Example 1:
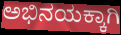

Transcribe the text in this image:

ಅಭಿನಯಕ್ಕಾಗಿ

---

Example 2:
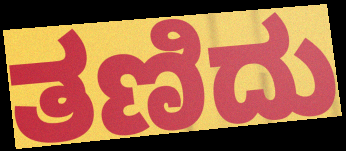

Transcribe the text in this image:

ತಣಿದು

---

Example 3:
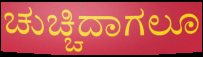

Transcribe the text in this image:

ಚುಚ್ಚಿದಾಗಲೂ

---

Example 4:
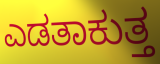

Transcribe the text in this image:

ಎಡತಾಕುತ್ತ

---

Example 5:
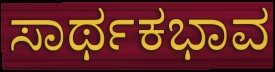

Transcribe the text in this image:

ಸಾರ್ಥಕಭಾವ